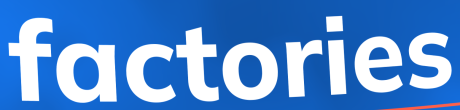
factories